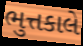
ભુત્તકાલે